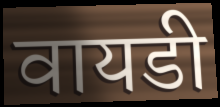
वायडी